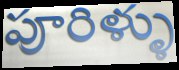
పూరిళ్ళు